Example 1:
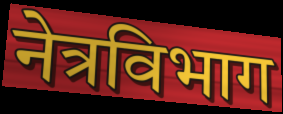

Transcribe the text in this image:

नेत्रविभाग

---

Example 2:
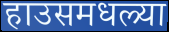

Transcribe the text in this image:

हाउसमधल्या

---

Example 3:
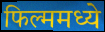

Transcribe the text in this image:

फिल्ममध्ये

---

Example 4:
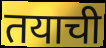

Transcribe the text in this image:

तयाची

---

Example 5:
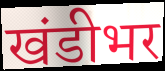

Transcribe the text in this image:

खंडीभर